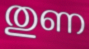
തുണ